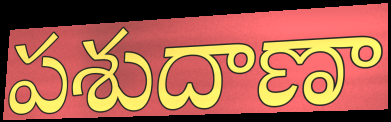
పశుదాణా